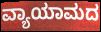
ವ್ಯಾಯಾಮದ